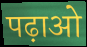
पढ़ाओ